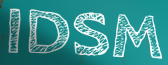
IDSM